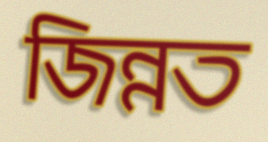
জিন্নত